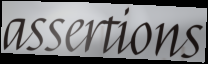
assertions